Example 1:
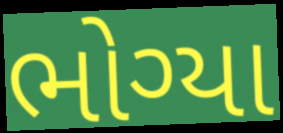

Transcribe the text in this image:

ભોગ્યા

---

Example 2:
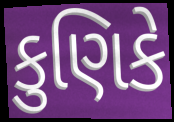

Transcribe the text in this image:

કુણિકે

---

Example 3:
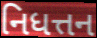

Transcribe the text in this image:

નિધત્તન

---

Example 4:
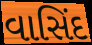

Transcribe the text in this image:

વાસિંદ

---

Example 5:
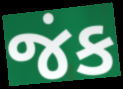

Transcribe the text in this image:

જંક